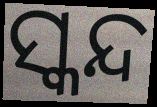
ସ୍କନ୍ଦ